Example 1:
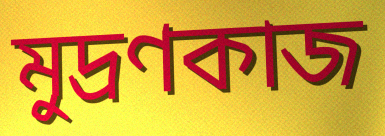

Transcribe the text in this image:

মুদ্রণকাজ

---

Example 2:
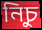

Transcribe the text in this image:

নিচু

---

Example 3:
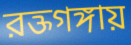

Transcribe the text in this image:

রক্তগঙ্গায়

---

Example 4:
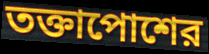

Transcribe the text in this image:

তক্তাপোশের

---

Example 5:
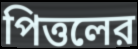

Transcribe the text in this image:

পিত্তলের